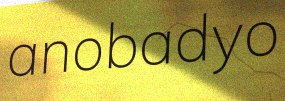
anobadyo